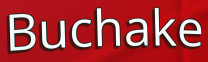
Buchake